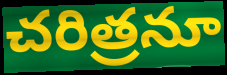
చరిత్రనూ